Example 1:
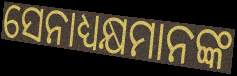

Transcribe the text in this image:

ସେନାଧ୍ୟକ୍ଷମାନଙ୍କ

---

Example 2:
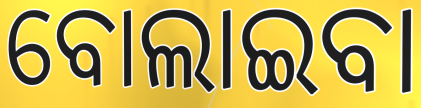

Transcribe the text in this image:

ବୋଲାଇବା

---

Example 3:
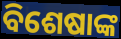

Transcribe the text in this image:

ବିଶେଷାଙ୍କ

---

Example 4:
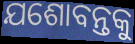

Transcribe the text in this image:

ଯଶୋବନ୍ତକୁ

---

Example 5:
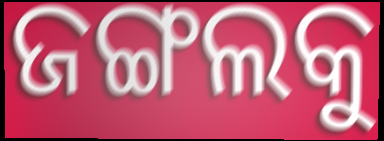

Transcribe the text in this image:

ଜଙ୍ଗଲକୁ